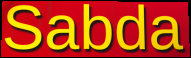
Sabda